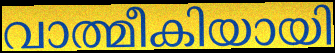
വാത്മീകിയായി